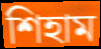
শিহাম